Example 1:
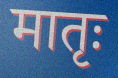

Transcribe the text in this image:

मातृः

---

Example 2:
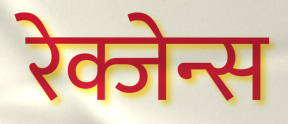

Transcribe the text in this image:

रेक्जेन्स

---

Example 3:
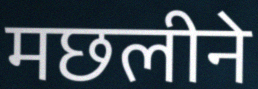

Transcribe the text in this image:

मछलीने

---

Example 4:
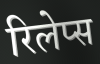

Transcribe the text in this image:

रिलेप्स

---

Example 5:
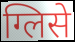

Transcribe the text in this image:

ग्लिसे